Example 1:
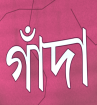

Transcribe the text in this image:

গাঁদা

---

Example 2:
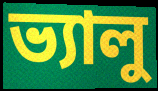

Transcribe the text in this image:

ভ্যালু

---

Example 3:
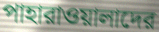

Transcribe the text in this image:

পাহারাওয়ালাদের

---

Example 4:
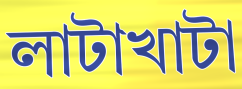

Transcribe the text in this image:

লাটাখাটা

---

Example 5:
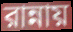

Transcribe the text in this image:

রান্নায়